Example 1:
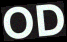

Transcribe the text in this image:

OD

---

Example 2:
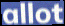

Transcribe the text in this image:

allot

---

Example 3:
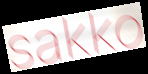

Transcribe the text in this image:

sakko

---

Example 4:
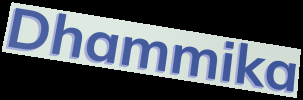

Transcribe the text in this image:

Dhammika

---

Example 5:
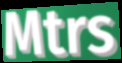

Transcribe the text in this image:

Mtrs